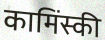
कामिंस्की